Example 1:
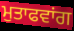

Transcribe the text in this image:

ਮੁਤਾਫਵਾਂਗ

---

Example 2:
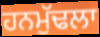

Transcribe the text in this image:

ਹਨਮੁੱਢਲਾ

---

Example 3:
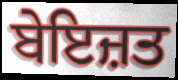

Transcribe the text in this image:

ਬੇਇਜ਼ਤ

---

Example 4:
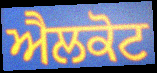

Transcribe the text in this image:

ਐਲਕੋਟ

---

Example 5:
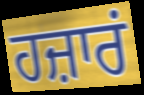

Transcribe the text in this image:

ਹਜ਼ਾਰਂ